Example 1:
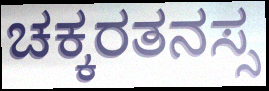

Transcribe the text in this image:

ಚಕ್ಕರತನಸ್ಸ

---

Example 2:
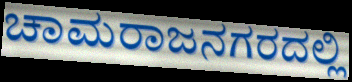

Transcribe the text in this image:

ಚಾಮರಾಜನಗರದಲ್ಲಿ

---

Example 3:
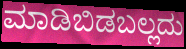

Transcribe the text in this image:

ಮಾಡಿಬಿಡಬಲ್ಲದು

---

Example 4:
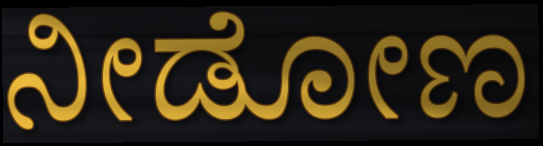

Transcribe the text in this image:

ನೀಡೋಣ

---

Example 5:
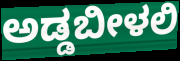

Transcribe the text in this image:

ಅಡ್ಡಬೀಳಲಿ